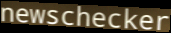
newschecker